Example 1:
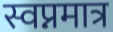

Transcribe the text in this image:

स्वप्नमात्र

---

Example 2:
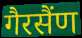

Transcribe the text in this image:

गैरसैंण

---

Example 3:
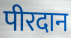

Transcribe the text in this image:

पीरदान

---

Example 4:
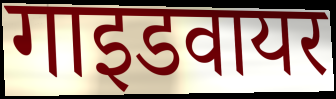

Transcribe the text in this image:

गाइडवायर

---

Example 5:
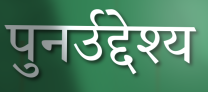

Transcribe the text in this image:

पुनर्उद्देश्य